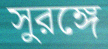
সুরঙ্গে